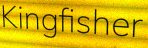
Kingfisher